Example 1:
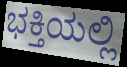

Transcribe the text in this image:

ಭಕ್ತಿಯಲ್ಲಿ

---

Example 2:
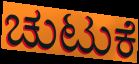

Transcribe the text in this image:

ಚುಟುಕೆ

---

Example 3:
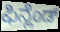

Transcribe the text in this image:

ಫಿನ್ಲೆಂಡ್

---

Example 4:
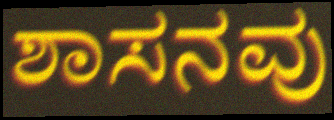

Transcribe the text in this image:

ಶಾಸನವು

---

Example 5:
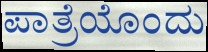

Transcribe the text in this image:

ಪಾತ್ರೆಯೊಂದು